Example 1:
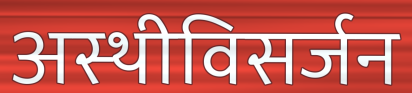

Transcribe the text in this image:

अस्थीविसर्जन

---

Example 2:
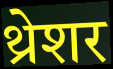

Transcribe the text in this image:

थ्रेशर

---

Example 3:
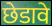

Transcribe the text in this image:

छेडावे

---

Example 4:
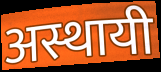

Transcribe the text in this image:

अस्थायी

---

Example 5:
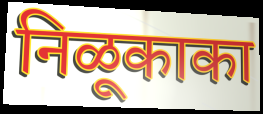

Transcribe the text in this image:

निळूकाका